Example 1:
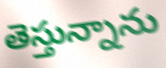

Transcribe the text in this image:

తెస్తున్నాను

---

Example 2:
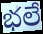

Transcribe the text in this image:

భలే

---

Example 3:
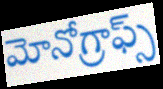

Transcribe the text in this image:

మోనోగ్రాఫ్స్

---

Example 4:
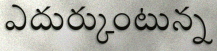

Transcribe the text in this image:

ఎదుర్కుంటున్న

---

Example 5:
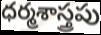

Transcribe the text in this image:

ధర్మశాస్త్రపు